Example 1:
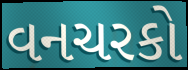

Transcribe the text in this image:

વનચરકો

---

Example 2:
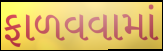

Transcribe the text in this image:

ફાળવવામાં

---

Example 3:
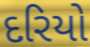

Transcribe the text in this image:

દરિયો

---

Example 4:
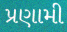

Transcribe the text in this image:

પ્રણામી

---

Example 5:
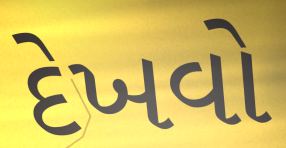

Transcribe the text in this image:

દેખવો